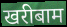
खरीबाम